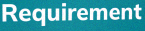
Requirement